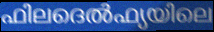
ഫിലദെൽഫ്യയിലെ